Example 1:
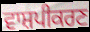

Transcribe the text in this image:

ਵਾਸ਼ਪੀਕਰਣ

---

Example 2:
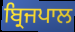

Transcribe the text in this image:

ਬ੍ਰਿਜਪਾਲ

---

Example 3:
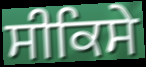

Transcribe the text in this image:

ਸੀਕਿਸੇ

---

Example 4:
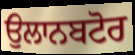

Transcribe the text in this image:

ਉਲਾਨਬਟੋਰ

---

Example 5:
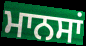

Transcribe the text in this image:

ਮਾਨਸਾਂ